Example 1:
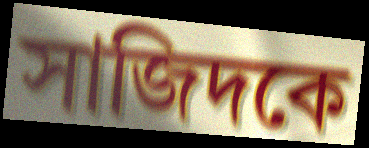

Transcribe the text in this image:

সাজিদকে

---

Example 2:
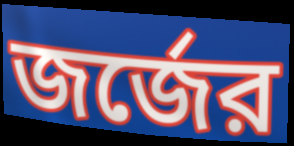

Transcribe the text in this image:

জর্জের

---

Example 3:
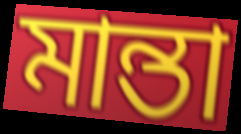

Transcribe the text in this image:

মান্তা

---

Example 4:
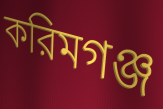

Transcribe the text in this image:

করিমগঞ্জ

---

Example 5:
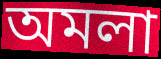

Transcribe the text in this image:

অমলা